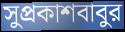
সুপ্রকাশবাবুর